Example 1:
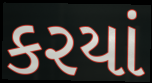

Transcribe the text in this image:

કરયાં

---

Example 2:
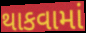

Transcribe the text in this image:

થાકવામાં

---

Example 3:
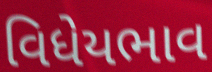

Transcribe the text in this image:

વિધેયભાવ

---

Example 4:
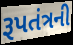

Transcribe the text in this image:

રૂપતંત્રની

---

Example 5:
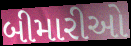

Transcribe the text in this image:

બીમારીઓ